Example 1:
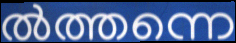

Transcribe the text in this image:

ൽത്തന്നെ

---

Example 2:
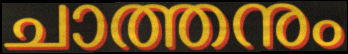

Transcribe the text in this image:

ചാത്തനും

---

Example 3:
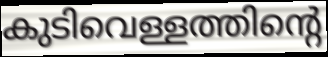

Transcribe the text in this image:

കുടിവെള്ളത്തിന്റെ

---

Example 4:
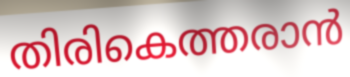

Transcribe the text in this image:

തിരികെത്തരാൻ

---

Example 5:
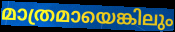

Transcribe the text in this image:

മാത്രമായെങ്കിലും